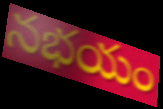
నభయం